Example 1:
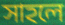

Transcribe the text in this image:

সাহলে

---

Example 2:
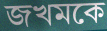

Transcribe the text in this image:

জখমকে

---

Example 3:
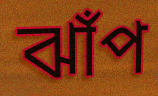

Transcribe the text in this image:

ঝাঁপ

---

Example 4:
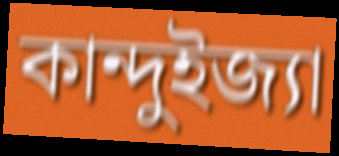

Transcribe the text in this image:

কান্দুইজ্যা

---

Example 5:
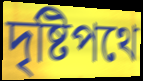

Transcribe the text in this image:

দৃষ্টিপথে